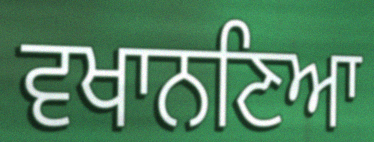
ਵਖਾਨਣਿਆ